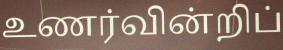
உணர்வின்றிப்